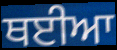
ਥਈਆ